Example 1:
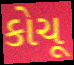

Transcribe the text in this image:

કોચૂ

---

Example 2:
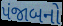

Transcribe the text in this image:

પંજાબનો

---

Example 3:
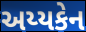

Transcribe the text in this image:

અય્યકેન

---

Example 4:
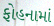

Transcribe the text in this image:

ફોહનામાં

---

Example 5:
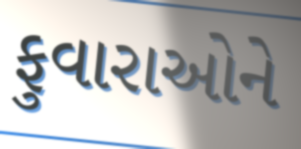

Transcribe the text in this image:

ફુવારાઓને